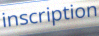
inscription